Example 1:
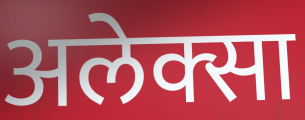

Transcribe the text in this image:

अलेक्‍सा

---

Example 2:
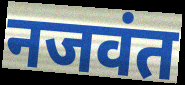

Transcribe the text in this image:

नजवंत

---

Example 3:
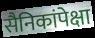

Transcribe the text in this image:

सैनिकांपेक्षा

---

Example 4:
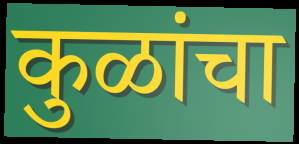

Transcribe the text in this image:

कुळांचा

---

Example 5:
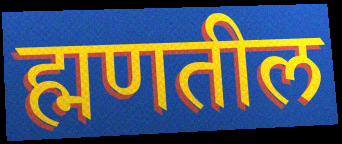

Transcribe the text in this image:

ह्मणतील